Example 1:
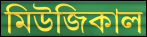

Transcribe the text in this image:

মিউজিকাল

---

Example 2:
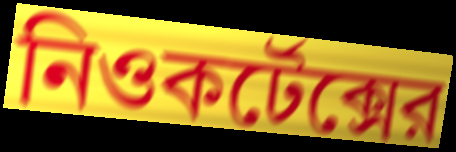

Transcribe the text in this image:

নিওকর্টেক্সের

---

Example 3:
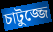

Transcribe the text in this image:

চাটুজ্জে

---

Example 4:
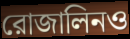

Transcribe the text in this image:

রোজালিনও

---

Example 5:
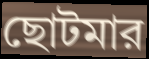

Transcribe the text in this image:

ছোটমার